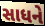
સાધને